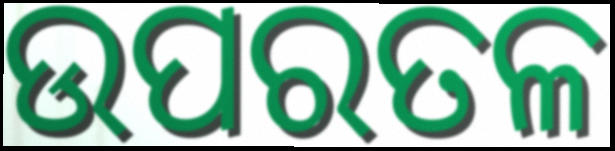
ଉପରତଳ